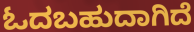
ಓದಬಹುದಾಗಿದೆ